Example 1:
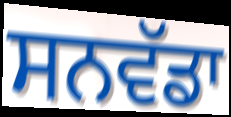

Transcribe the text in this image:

ਸਨਵੱਡਾ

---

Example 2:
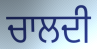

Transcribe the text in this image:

ਚਾਲਦੀ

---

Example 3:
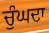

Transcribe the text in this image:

ਚੁੰਘਦਾ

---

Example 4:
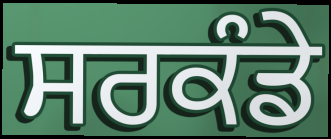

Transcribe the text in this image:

ਸਰਕੰਡੇ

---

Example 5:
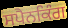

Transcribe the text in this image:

ਸਪੈਨਕਿੰਗ